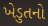
ખેડુતનો